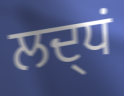
ਲਦ੍ਧਂ